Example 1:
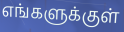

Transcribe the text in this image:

எங்களுக்குள்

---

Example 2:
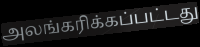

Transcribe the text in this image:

அலங்கரிக்கப்பட்டது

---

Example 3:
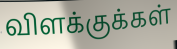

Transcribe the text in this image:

விளக்குக்கள்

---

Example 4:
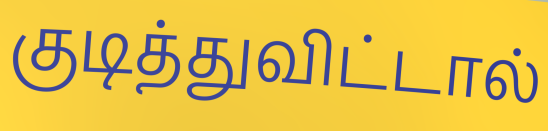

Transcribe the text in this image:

குடித்துவிட்டால்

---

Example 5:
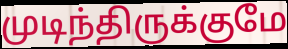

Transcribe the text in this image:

முடிந்திருக்குமே